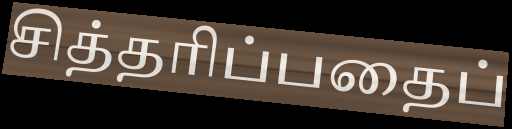
சித்தரிப்பதைப்